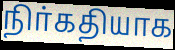
நிர்கதியாக